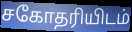
சகோதரியிடம்